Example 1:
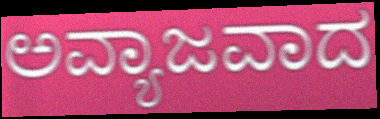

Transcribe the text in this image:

ಅವ್ಯಾಜವಾದ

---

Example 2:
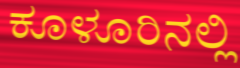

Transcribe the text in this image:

ಕೂಳೂರಿನಲ್ಲಿ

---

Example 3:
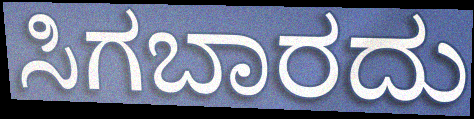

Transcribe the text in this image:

ಸಿಗಬಾರದು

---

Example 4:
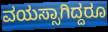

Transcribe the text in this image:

ವಯಸ್ಸಾಗಿದ್ದರೂ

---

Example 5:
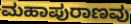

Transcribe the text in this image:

ಮಹಾಪುರಾಣವು